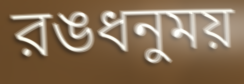
রঙধনুময়